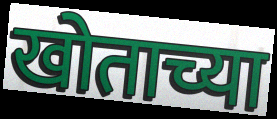
खोताच्या